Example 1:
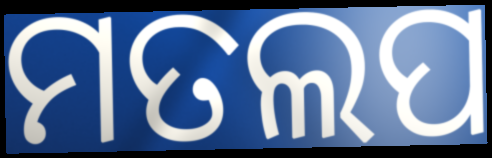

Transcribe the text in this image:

ମତଲପ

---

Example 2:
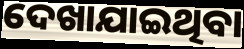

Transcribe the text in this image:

ଦେଖାଯାଇଥିବା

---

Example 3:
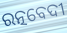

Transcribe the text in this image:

ରତ୍ନବେଦୀ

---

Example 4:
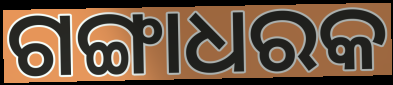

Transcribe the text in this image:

ଗଙ୍ଗାଧରକ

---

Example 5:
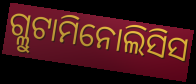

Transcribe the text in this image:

ଗ୍ଲୁଟାମିନୋଲିସିସ